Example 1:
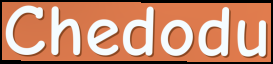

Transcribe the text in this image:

Chedodu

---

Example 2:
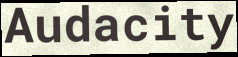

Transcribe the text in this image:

Audacity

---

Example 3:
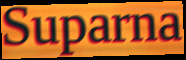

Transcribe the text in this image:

Suparna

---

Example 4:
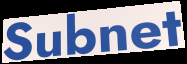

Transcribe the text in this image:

Subnet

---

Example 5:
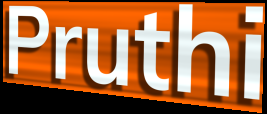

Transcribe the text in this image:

Pruthi